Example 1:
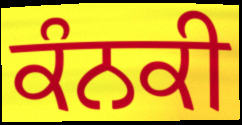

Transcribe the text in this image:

ਕੰਨਕੀ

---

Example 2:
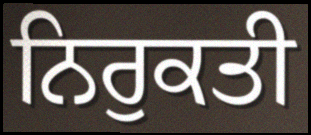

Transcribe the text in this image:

ਨਿਰੁਕਤੀ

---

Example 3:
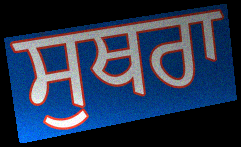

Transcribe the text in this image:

ਸੁਥਰਾ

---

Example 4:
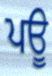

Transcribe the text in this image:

ਪਊ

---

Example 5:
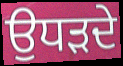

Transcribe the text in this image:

ਉਧੜਦੇ